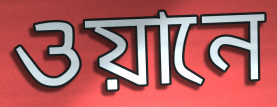
ওয়ানে